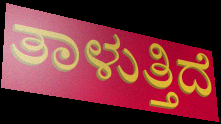
ತಾಳುತ್ತಿದೆ